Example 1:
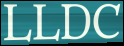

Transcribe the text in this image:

LLDC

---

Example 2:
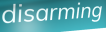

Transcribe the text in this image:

disarming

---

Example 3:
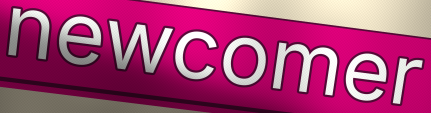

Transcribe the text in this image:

newcomer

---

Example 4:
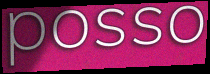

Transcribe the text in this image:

posso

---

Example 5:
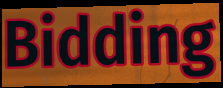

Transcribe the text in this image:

Bidding